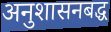
अनुशासनबद्ध